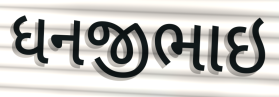
ધનજીભાઇ